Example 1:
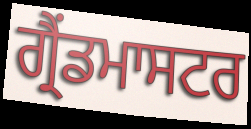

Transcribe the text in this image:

ਗ੍ਰੈਂਡਮਾਸਟਰ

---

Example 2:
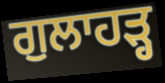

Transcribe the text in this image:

ਗੁਲਾਹੜ੍ਹ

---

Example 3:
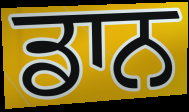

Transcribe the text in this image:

ਡਾਨ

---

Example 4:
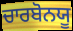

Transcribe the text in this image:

ਚਾਰਬੋਨਯੂ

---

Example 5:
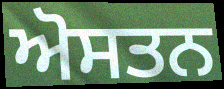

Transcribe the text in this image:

ਅੋਸਤਨ